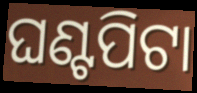
ଘଣ୍ଟପିଟା